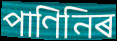
পাণিনিৰ